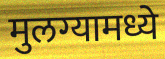
मुलग्यामध्ये